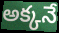
అక్కనే